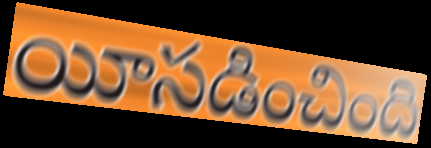
యీసడించింది